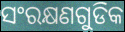
ସଂରକ୍ଷଣଗୁଡିକ